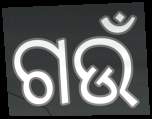
ଗଉଁ